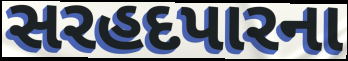
સરહદપારના